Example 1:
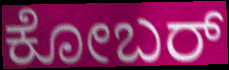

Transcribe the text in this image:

ಕೋಬರ್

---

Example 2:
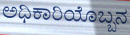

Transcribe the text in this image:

ಅಧಿಕಾರಿಯೊಬ್ಬನ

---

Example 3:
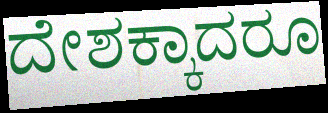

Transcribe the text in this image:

ದೇಶಕ್ಕಾದರೂ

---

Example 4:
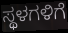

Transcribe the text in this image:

ಸ್ಥಳಗಳಿಗೆ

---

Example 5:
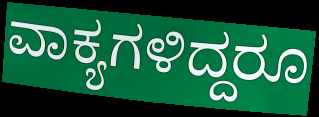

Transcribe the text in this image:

ವಾಕ್ಯಗಳಿದ್ದರೂ